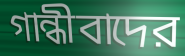
গান্ধীবাদের